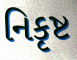
નિકૃષ્ટ